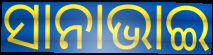
ସାନାଭାଇ